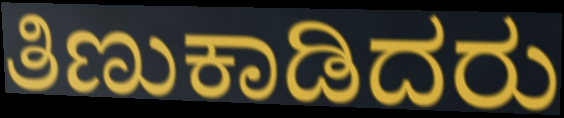
ತಿಣುಕಾಡಿದರು